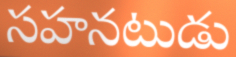
సహనటుడు